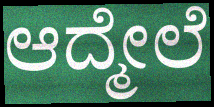
ಆದ್ಮೇಲೆ